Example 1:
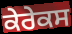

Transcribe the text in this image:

ਕੇਰੇਕਸ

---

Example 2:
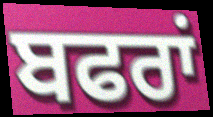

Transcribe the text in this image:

ਬਫਰਾਂ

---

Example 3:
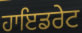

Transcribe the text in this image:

ਹਾਇਡਰੇਟ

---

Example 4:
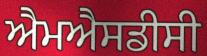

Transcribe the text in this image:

ਐਮਐਸਡੀਸੀ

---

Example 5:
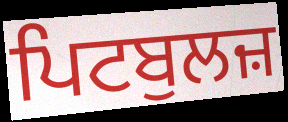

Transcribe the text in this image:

ਪਿਟਬੁਲਜ਼